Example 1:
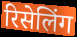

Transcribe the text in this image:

रिसेलिंग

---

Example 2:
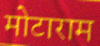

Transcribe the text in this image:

मोटाराम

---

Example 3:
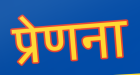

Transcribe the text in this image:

प्रेणना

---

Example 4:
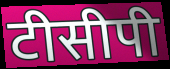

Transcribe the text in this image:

टीसीपी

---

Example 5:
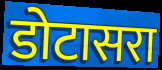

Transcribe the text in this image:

डोटासरा